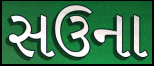
સઉના